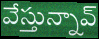
వేస్తున్నావ్